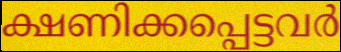
ക്ഷണിക്കപ്പെട്ടവർ